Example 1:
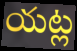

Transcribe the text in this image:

యట్ల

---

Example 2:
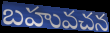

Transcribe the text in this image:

బహువచన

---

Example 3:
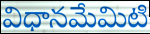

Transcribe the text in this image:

విధానమేమిటి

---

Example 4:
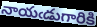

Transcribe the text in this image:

నాయఁడుగారికి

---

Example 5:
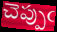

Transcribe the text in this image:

చెప్పుఁ